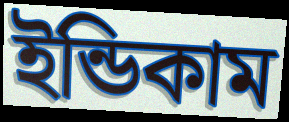
ইন্ডিকাম